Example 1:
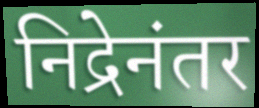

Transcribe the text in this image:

निद्रेनंतर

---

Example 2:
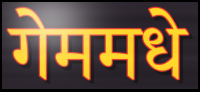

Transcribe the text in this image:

गेममधे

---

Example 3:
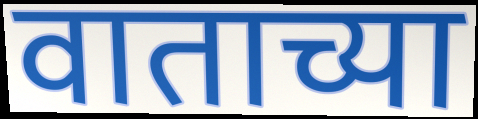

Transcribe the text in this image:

वाताच्या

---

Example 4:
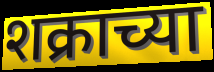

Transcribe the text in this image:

शक्राच्या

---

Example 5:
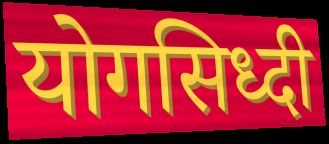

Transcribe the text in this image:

योगसिध्दी